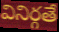
వినిర్గతే